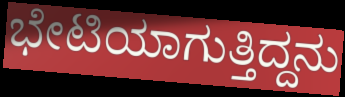
ಭೇಟಿಯಾಗುತ್ತಿದ್ದನು